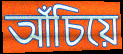
আঁচিয়ে